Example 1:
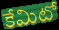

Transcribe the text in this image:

కేమిటో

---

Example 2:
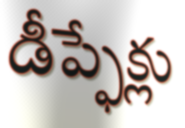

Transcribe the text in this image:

డీప్ఫేక్లు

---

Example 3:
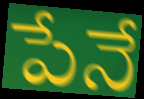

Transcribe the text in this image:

పేనే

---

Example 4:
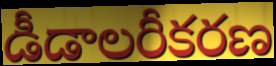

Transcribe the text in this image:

డీడాలరీకరణ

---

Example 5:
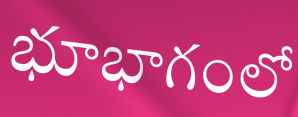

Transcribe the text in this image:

భూభాగంలో